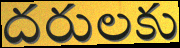
దరులకు